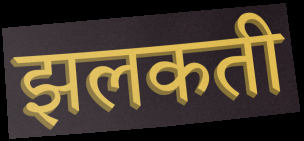
झलकती